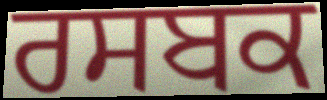
ਰਸਬਕ